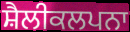
ਸ਼ੈਲੀਕਲਪਨਾ